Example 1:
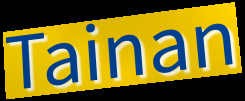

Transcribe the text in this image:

Tainan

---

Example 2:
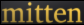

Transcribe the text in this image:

mitten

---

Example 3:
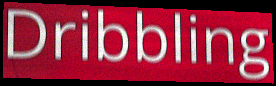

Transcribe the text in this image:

Dribbling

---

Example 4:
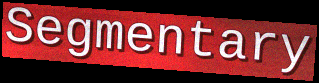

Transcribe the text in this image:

Segmentary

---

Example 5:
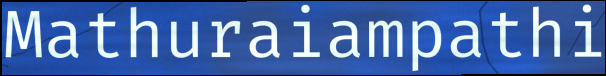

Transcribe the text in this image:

Mathuraiampathi